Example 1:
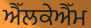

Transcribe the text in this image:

ਐੱਲਕੇਐੱਮ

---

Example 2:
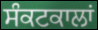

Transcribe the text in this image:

ਸੰਕਟਕਾਲਾਂ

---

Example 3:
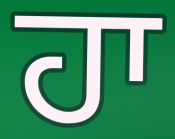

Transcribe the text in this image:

ਹਾ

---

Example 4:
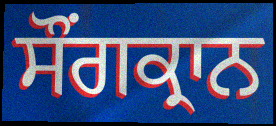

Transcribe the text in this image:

ਸੌਂਗਕ੍ਰਾਨ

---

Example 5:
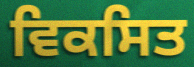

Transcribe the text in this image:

ਵਿਕਸਿਤ